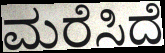
ಮರೆಸಿದೆ